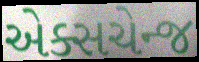
એક્સચેન્જ